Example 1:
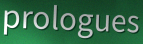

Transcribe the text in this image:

prologues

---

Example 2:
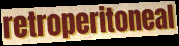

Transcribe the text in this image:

retroperitoneal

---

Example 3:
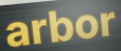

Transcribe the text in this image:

arbor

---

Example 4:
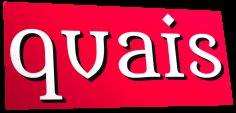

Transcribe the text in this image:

quais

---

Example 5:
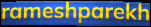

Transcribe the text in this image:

rameshparekh